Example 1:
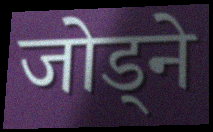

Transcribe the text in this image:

जोड्ने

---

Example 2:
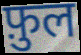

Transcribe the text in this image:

फ़ुल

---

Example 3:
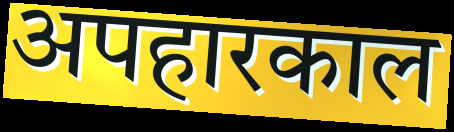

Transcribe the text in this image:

अपहारकाल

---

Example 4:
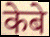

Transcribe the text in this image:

केबे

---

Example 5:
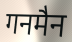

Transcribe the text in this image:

गनमैन